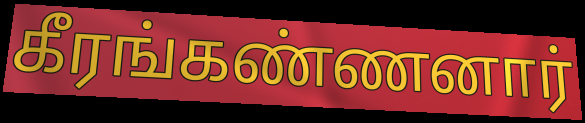
கீரங்கண்ணனார்